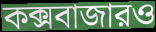
কক্সবাজারও